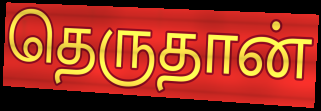
தெருதான்